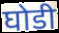
घोडी